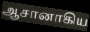
ஆசானாகிய